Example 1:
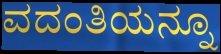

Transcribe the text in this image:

ವದಂತಿಯನ್ನೂ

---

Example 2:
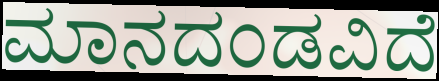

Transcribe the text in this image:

ಮಾನದಂಡವಿದೆ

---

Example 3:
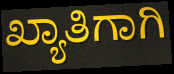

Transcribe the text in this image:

ಖ್ಯಾತಿಗಾಗಿ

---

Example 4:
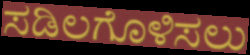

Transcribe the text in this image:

ಸಡಿಲಗೊಳಿಸಲು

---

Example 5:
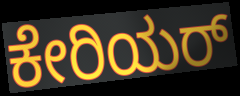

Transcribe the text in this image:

ಕೇರಿಯರ್